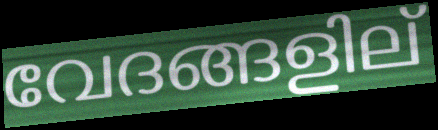
വേദങ്ങളില്